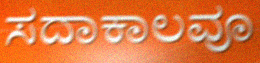
ಸದಾಕಾಲವೂ